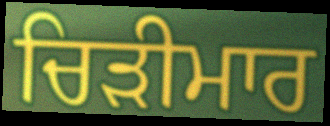
ਚਿੜੀਮਾਰ